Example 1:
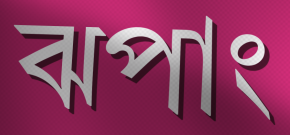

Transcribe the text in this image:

ঝপাং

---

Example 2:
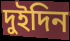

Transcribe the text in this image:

দুইদিন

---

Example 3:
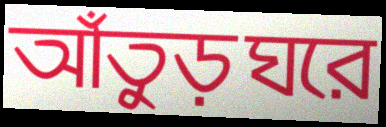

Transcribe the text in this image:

আঁতুড়ঘরে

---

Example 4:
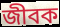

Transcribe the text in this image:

জীবক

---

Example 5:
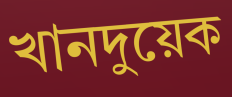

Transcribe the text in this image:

খানদুয়েক